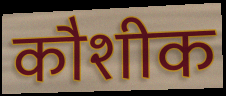
कौशीक